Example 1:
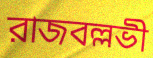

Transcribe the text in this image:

রাজবল্লভী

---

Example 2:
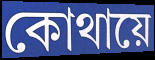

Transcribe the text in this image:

কোথায়ে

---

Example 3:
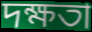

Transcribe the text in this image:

দক্ষতা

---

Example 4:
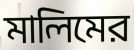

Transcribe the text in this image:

মালিমের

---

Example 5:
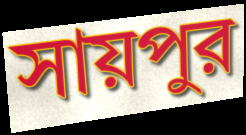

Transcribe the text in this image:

সায়পুর